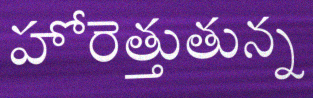
హోరెత్తుతున్న